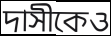
দাসীকেও